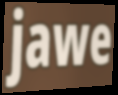
jawe